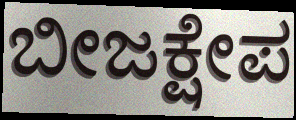
ಬೀಜಕ್ಷೇಪ